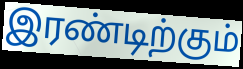
இரண்டிற்கும்